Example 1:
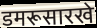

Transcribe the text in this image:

डमरूसारखे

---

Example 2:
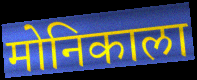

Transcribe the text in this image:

मोनिकाला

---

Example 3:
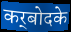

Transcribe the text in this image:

कर्बोदके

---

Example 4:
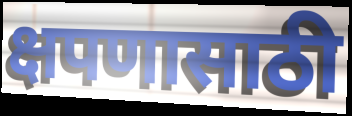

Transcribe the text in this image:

क्षपणासाठी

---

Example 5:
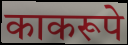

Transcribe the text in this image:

काकरूपे